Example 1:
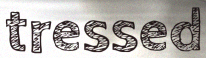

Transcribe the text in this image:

tressed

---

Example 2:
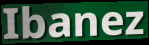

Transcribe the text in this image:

Ibanez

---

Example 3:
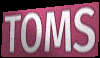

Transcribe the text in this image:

TOMS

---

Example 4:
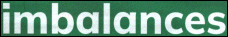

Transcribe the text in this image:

imbalances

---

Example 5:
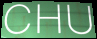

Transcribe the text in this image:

CHU